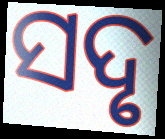
ସଦୃ